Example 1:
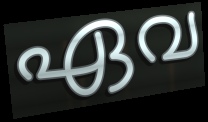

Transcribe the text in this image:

ഏവ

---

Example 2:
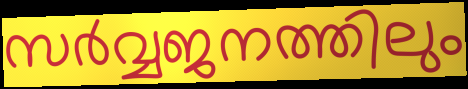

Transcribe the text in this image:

സർവ്വജനത്തിലും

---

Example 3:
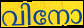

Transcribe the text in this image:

വിനോ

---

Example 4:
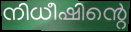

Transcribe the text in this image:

നിധീഷിന്റെ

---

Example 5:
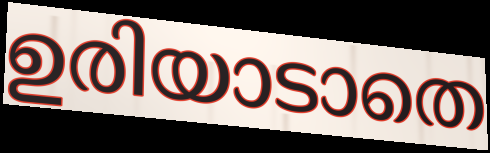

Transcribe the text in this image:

ഉരിയാടാതെ